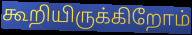
கூறியிருக்கிறோம்